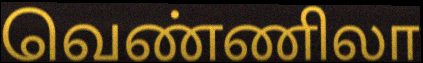
வெண்ணிலா